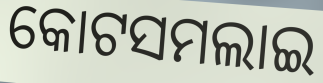
କୋଟସମଲାଇ